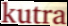
kutra